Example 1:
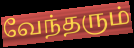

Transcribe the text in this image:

வேந்தரும்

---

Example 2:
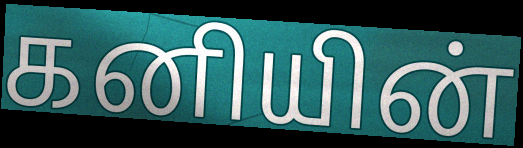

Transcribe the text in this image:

கனியின்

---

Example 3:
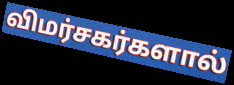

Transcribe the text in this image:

விமர்சகர்களால்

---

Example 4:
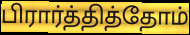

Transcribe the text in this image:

பிரார்த்தித்தோம்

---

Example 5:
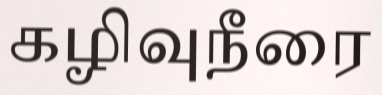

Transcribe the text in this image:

கழிவுநீரை